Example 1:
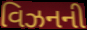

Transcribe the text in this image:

વિઝનની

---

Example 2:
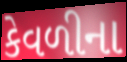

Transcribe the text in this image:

કેવળીના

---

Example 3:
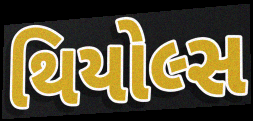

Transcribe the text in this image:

થિયોલ્સ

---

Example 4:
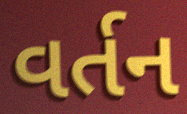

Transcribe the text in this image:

વર્તન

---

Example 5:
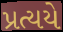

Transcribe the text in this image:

પ્રત્યયે